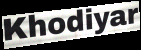
Khodiyar